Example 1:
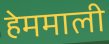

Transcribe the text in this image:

हेममाली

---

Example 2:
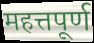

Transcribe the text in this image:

महत्तपूर्ण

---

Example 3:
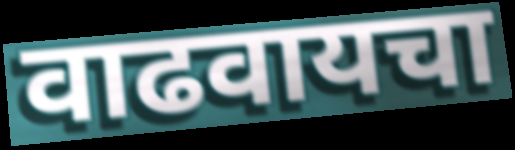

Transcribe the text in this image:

वाढवायचा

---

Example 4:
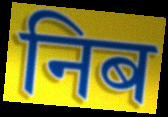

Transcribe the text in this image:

निब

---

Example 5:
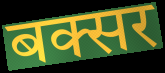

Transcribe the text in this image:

बक्‍सर